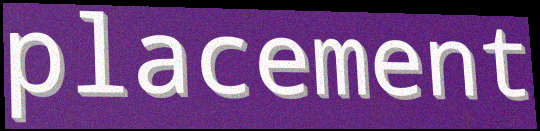
placement